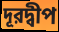
দূরদ্বীপ